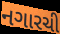
નગારચી